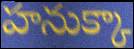
హనుక్కా